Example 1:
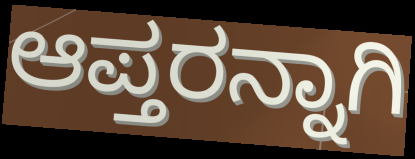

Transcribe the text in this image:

ಆಪ್ತರನ್ನಾಗಿ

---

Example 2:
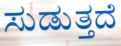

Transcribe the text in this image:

ಸುಡುತ್ತದೆ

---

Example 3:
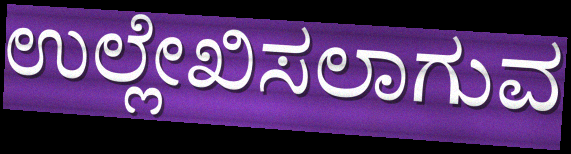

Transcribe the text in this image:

ಉಲ್ಲೇಖಿಸಲಾಗುವ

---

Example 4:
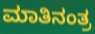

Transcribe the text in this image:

ಮಾತಿನಂತ್ರ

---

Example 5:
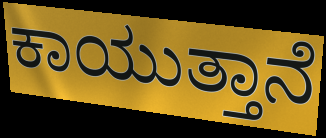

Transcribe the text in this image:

ಕಾಯುತ್ತಾನೆ